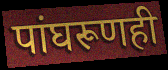
पांघरूणही